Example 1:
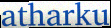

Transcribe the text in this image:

atharku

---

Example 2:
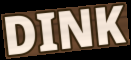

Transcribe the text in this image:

DINK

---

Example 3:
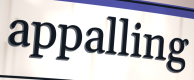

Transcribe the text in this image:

appalling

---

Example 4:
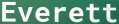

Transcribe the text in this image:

Everett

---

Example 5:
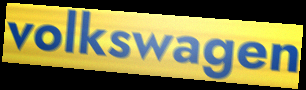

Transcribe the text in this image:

volkswagen